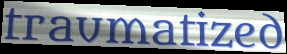
traumatized